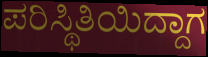
ಪರಿಸ್ಥಿತಿಯಿದ್ದಾಗ